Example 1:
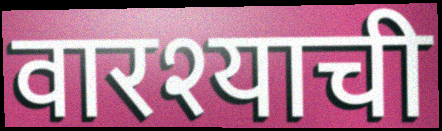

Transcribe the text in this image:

वारश्याची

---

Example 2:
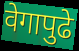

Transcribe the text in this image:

वेगापुढे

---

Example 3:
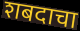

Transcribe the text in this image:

शबदाचा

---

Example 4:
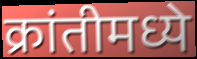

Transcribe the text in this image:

क्रांतीमध्ये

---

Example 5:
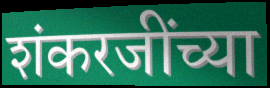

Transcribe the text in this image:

शंकरजींच्या